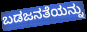
ಬಡಜನತೆಯನ್ನು